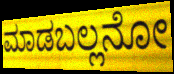
ಮಾಡಬಲ್ಲನೋ